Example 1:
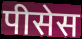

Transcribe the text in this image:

पीसेस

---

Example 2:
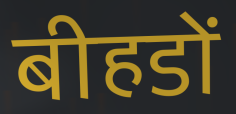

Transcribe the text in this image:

बीहडों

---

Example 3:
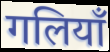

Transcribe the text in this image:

गलियाँ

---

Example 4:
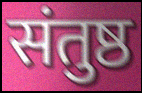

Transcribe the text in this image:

संतुष्ठ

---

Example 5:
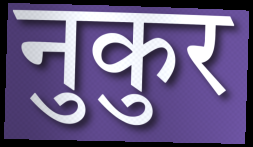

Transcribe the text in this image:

नुकुर